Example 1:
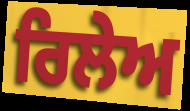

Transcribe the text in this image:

ਰਿਲੇਅ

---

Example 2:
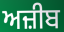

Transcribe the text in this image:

ਅਜ਼ੀਬ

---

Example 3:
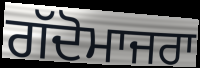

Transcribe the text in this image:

ਗੱਦੋਮਾਜਰਾ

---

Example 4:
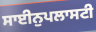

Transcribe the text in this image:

ਸਾਈਨੁਪਲਾਸਟੀ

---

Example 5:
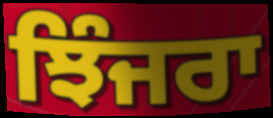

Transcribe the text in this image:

ਝਿੰਜਰਾ